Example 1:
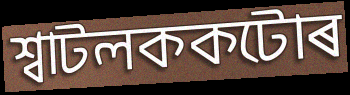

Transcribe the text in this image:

শ্বাটলককটোৰ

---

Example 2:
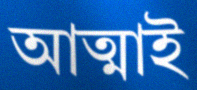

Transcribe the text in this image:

আত্মাই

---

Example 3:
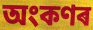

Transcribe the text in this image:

অংকণৰ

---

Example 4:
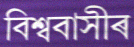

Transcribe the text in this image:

বিশ্ববাসীৰ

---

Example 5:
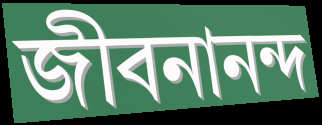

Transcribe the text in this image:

জীবনানন্দ